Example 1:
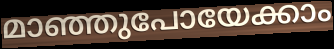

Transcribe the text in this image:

മാഞ്ഞുപോയേക്കാം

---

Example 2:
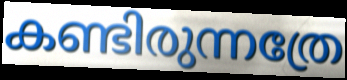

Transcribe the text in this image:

കണ്ടിരുന്നത്രേ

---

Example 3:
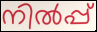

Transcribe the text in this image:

നിൽപ്പ്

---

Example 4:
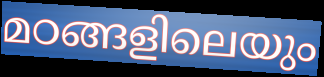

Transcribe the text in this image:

മഠങ്ങളിലെയും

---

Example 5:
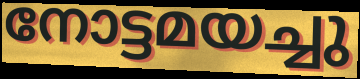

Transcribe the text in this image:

നോട്ടമയച്ചു